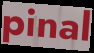
pinal